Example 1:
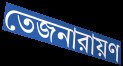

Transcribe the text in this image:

তেজনারায়ণ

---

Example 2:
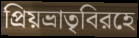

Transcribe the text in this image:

প্রিয়ভ্রাতৃবিরহে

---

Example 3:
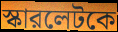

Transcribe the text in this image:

স্কারলেটকে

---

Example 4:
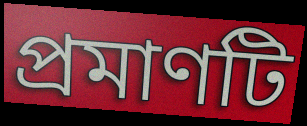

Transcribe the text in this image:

প্রমাণটি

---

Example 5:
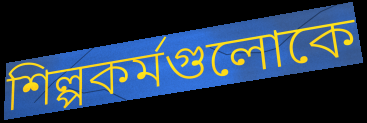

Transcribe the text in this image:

শিল্পকর্মগুলোকে